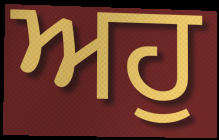
ਅਹੁ